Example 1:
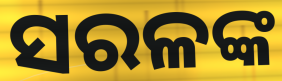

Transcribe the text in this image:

ସରଳଙ୍କ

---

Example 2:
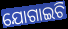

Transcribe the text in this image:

ଯୋଗାଇଚି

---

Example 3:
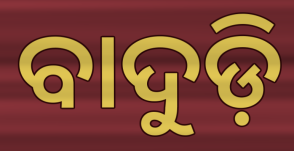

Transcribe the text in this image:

ବାଦୁଡ଼ି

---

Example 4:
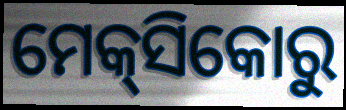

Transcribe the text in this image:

ମେକ୍‌ସିକୋରୁ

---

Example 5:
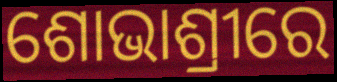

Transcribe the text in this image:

ଶୋଭାଶ୍ରୀରେ